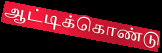
ஆட்டிக்கொண்டு